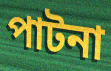
পাটনা